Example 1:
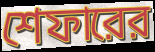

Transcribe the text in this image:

শেফারের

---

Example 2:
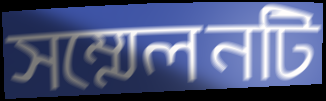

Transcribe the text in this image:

সম্মেলনটি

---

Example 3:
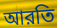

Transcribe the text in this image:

আরতি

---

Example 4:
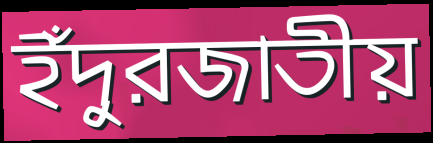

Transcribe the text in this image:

ইঁদুরজাতীয়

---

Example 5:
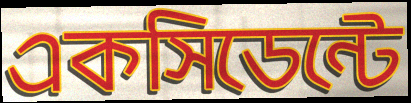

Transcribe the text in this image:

একসিডেন্টে